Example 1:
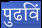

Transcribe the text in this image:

पुढविं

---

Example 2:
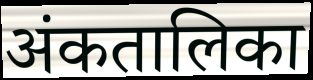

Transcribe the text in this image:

अंकतालिका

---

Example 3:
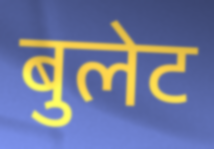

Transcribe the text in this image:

बुलेट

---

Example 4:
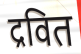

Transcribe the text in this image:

द्रवित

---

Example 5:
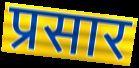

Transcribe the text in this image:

प्रसार